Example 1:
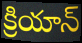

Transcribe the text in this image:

క్రియాన్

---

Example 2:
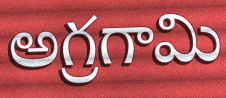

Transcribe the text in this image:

అగ్రగామి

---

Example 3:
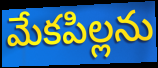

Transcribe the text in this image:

మేకపిల్లను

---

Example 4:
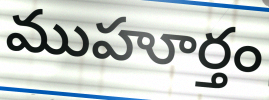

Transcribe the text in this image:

ముహూర్తం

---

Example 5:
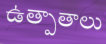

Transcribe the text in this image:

ఉత్పాతాలు